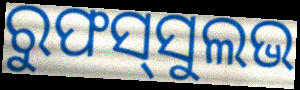
ରୁଫସ୍‌ସୁଲଭ